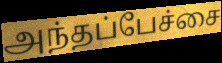
அந்தப்பேச்சை